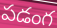
పడంగ